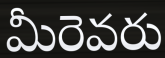
మీరెవరు